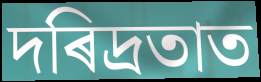
দৰিদ্ৰতাত